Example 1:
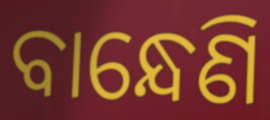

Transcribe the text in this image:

ବାନ୍ଧେଣି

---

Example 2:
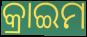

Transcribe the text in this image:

କ୍ରାଇମ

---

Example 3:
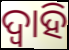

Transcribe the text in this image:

ଦ୍ୱାହି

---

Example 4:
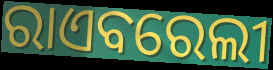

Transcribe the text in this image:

ରାଏବରେଲୀ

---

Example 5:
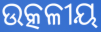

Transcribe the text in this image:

ଉତ୍କଳୀୟ